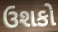
ઉશકો